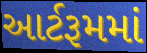
આર્ટરૂમમાં